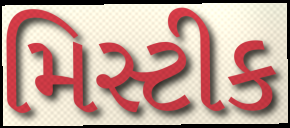
મિસ્ટીક